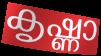
കൃഷ്ണാ